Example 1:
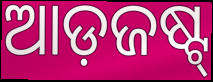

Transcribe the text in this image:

ଆଡ଼ଜଷ୍ଟ୍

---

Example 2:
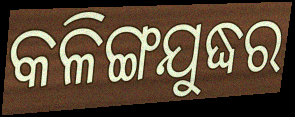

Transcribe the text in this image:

କଳିଙ୍ଗଯୁଦ୍ଧର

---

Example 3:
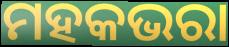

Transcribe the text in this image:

ମହକଭରା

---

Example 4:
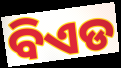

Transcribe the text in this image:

ବିଏଡ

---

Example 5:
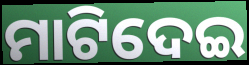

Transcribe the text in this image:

ମାଟିଦେଇ